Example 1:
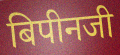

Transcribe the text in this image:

बिपीनजी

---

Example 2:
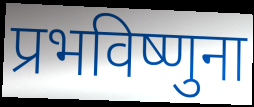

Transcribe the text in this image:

प्रभविष्णुना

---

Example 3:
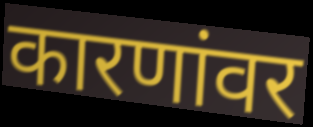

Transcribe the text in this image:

कारणांवर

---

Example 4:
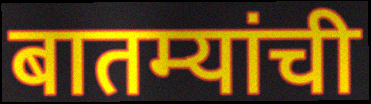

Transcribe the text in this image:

बातम्यांची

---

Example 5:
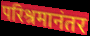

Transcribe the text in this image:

परिश्रमानंतर